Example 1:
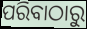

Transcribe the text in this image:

ପରିବାଠାରୁ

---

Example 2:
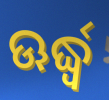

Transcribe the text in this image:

ଊର୍ଦ୍ଧ୍ବ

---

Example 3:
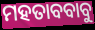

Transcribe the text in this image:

ମହତାବବାବୁ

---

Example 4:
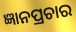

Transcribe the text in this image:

ଜ୍ଞାନପ୍ରଚାର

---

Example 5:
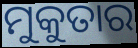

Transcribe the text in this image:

ମୁକୁତାର